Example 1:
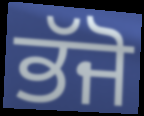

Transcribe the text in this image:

ਭੱਜੋ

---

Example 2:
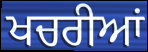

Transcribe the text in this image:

ਖਚਰੀਆਂ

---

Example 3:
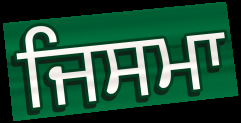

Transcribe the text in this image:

ਜਿਸਮਾ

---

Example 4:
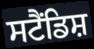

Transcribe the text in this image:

ਸਟੈਂਡਿਸ਼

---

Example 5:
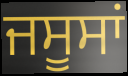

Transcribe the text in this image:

ਜਸੂਸਾਂ